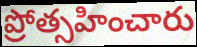
ప్రోత్సహించారు